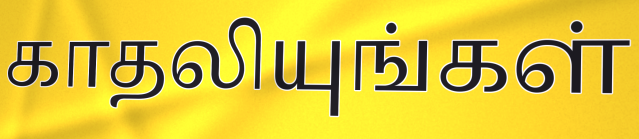
காதலியுங்கள்